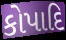
કોપાદિ